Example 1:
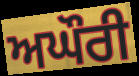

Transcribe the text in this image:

ਅਘੌਰੀ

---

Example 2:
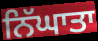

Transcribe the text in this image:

ਨਿੱਘਾਤਾ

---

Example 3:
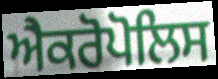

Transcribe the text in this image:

ਐਕਰੋਪੋਲਿਸ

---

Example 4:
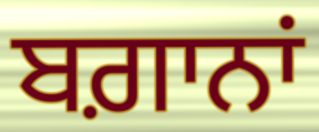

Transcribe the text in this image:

ਬਗ਼ਾਨਾਂ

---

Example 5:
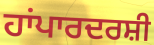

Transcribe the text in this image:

ਹਾਂਪਾਰਦਰਸ਼ੀ